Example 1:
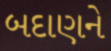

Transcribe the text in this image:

બદાણને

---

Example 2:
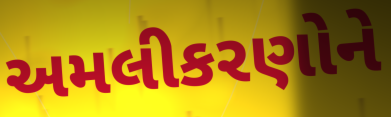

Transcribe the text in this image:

અમલીકરણોને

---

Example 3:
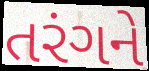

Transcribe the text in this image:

તરંગને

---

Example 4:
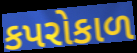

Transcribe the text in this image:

કપરોકાળ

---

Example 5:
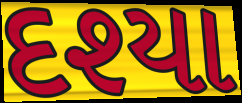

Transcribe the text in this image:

દશ્યા